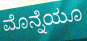
ಮೊನ್ನೆಯೂ